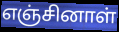
எஞ்சினாள்